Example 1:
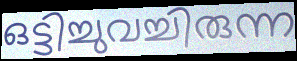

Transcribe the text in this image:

ഒട്ടിച്ചുവച്ചിരുന്ന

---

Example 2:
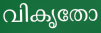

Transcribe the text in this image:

വികൃതോ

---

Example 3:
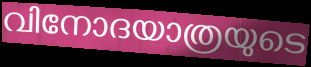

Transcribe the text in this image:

വിനോദയാത്രയുടെ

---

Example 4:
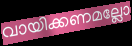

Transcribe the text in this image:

വായിക്കണമല്ലോ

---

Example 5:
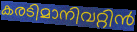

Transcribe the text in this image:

കരടിമാനിവറ്റിൻ